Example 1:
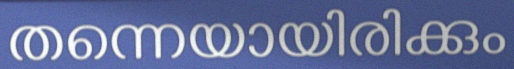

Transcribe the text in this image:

തന്നെയായിരിക്കും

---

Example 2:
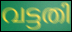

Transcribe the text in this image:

വട്ടതി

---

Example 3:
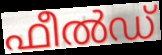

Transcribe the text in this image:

ഫീൽഡ്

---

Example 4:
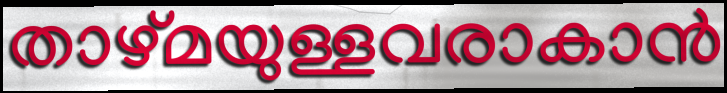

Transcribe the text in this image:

താഴ്മയുള്ളവരാകാൻ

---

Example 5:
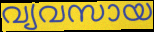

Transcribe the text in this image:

വ്യവസായ